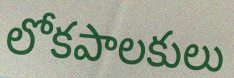
లోకపాలకులు